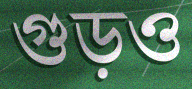
গুড়ও